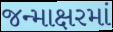
જન્માક્ષરમાં